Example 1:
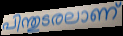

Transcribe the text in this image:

പിന്തുടരലാണ്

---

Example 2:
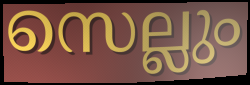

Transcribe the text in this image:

സെല്ലും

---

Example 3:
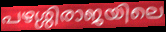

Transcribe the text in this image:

പഴശ്ശിരാജയിലെ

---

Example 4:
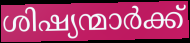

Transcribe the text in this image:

ശിഷ്യന്മാർക്ക്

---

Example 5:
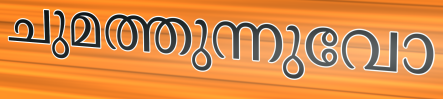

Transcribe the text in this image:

ചുമത്തുന്നുവോ